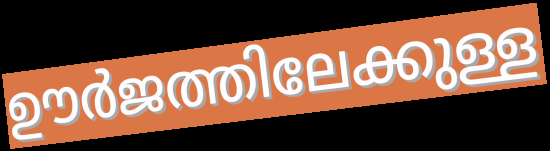
ഊർജത്തിലേക്കുള്ള